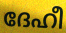
ദേഹീ